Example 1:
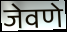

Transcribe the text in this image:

जेवणे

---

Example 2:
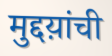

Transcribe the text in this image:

मुद्दय़ांची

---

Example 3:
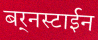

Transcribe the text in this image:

बर्नस्टाईन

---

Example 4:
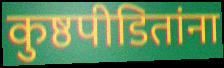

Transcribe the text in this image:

कुष्ठपीडितांना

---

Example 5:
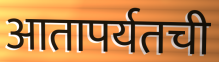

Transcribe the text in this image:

आतापर्यतची